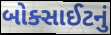
બોક્સાઈટનું